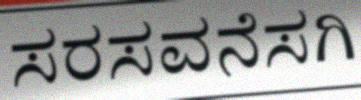
ಸರಸವನೆಸಗಿ